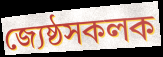
জ্যেষ্ঠসকলক